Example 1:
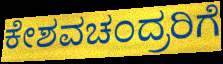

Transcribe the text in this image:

ಕೇಶವಚಂದ್ರರಿಗೆ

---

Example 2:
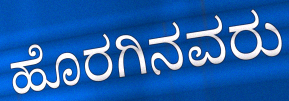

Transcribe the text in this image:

ಹೊರಗಿನವರು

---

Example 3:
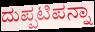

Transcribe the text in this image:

ದುಪ್ಪಟಿಪನ್ನಾ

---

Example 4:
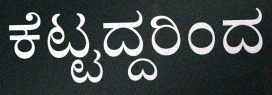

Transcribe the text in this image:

ಕೆಟ್ಟದ್ದರಿಂದ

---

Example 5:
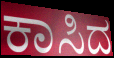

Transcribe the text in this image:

ಕಾಸಿದ